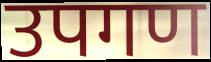
उपगण